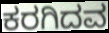
ಕರಗಿದವ